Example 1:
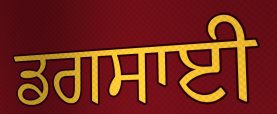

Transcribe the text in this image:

ਡਗਸਾਈ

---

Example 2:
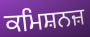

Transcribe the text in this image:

ਕਮਿਸ਼ਨਜ਼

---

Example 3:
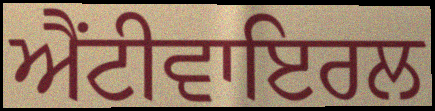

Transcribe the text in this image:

ਐਂਟੀਵਾਇਰਲ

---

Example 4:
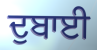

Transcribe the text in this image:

ਦੁਬਾਈ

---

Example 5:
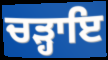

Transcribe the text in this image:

ਚੜ੍ਹਾਇ